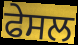
ਫੇਸਲ